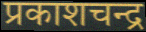
प्रकाशचन्द्र